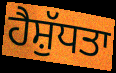
ਹੈਸ਼ੁੱਧਤਾ